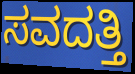
ಸವದತ್ತಿ